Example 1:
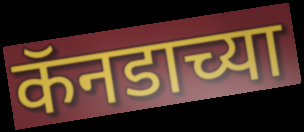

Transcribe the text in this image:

कॅनडाच्या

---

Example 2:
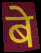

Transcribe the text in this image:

बे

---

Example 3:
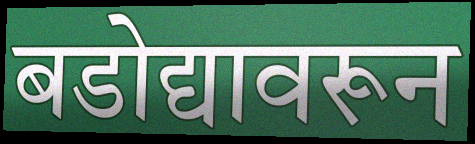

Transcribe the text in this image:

बडोद्यावरून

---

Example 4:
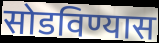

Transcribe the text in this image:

सोडविण्यास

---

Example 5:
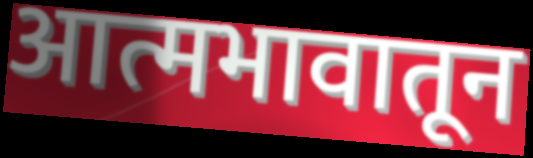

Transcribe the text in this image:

आत्मभावातून